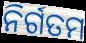
ନିର୍ଗତମ